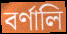
বর্ণালি